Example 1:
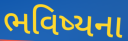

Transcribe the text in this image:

ભવિષ્યના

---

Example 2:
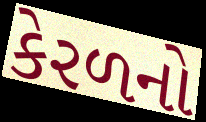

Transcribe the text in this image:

કેરળનો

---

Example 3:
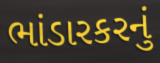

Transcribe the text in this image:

ભાંડારકરનું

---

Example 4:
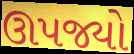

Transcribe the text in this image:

ઊપજ્યો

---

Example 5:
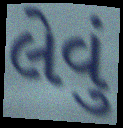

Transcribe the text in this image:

લેવું